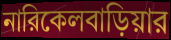
নারিকেলবাড়িয়ার